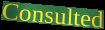
Consulted